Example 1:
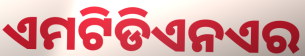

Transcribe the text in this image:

ଏମଟିଡିଏନଏର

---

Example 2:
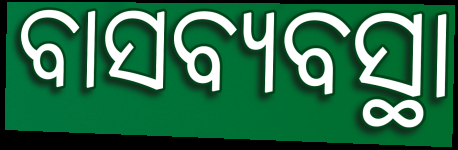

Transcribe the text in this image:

ବାସବ୍ୟବସ୍ଥା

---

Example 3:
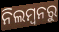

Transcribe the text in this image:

ନିଲମ୍ବନରୁ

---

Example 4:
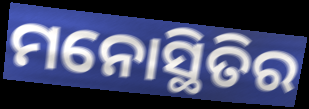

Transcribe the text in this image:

ମନୋସ୍ଥିତିର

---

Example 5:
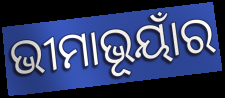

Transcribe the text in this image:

ଭୀମାଭୂୟାଁର